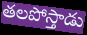
తలపోస్తాడు